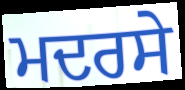
ਮਦਰਸੇ